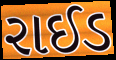
રાઈડ